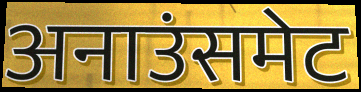
अनाउंसमेट